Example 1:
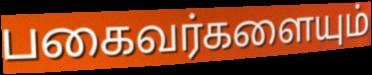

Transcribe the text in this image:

பகைவர்களையும்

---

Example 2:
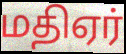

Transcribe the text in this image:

மதிஏர்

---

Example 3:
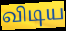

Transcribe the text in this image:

விடிய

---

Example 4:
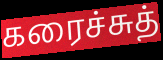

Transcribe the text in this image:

கரைச்சுத்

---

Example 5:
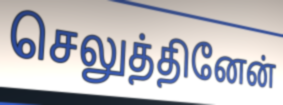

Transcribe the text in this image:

செலுத்தினேன்